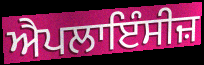
ਐਪਲਾਇੰਸੀਜ਼